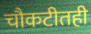
चौकटीतही